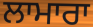
ਲਾਮਾਰਾ